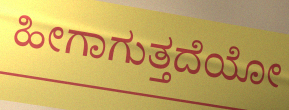
ಹೀಗಾಗುತ್ತದೆಯೋ